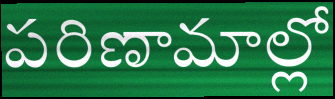
పరిణామాల్లో